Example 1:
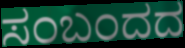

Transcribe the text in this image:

ಸಂಬಂದದ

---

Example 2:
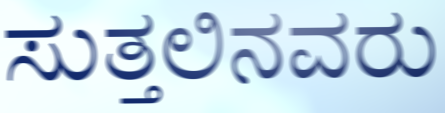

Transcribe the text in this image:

ಸುತ್ತಲಿನವರು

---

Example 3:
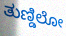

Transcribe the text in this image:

ತುಣ್ಡಿಲೋ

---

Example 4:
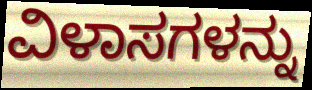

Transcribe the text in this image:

ವಿಳಾಸಗಳನ್ನು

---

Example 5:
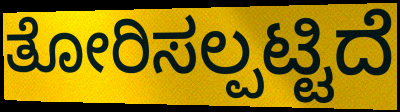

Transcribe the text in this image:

ತೋರಿಸಲ್ಪಟ್ಟಿದೆ